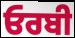
ਓਰਬੀ